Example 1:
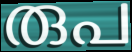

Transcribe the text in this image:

രുപ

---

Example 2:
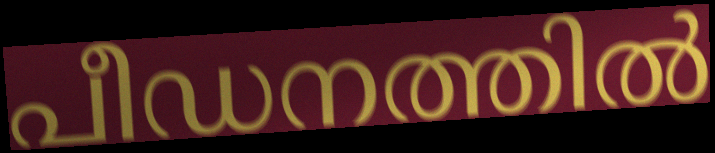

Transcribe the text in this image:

പീഡനത്തിൽ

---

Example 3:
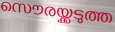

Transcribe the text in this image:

സൌരയ്ക്കടുത്ത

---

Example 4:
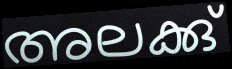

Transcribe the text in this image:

അലക്കു്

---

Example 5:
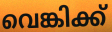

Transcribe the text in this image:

വെങ്കിക്ക്